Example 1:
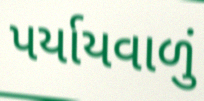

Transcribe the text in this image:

પર્યાયવાળું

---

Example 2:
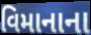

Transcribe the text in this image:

વિમાનાના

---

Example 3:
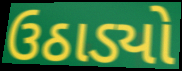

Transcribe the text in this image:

ઉઠાડ્યો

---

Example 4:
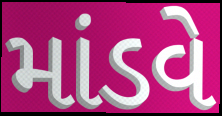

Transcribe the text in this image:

માંડવે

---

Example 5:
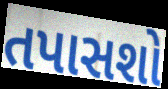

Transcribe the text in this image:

તપાસશો